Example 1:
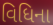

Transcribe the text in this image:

વિધિના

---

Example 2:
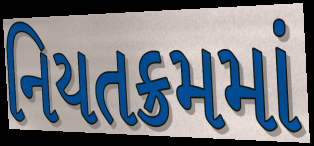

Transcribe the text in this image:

નિયતક્રમમાં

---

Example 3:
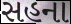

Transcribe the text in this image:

સહના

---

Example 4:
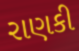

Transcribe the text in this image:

રાણકી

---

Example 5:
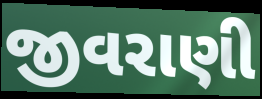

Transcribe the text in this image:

જીવરાણી